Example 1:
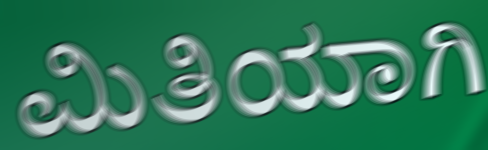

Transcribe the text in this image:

ಮಿತಿಯಾಗಿ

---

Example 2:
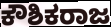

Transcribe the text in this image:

ಕೌಶಿಕರಾಜ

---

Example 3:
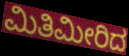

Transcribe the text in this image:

ಮಿತಿಮೀರಿದ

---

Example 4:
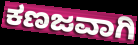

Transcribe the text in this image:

ಕಣಜವಾಗಿ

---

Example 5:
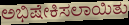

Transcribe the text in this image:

ಅಭಿಷೇಕಿಸಲಾಯಿತು